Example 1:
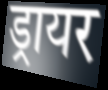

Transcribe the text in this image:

ड्रायर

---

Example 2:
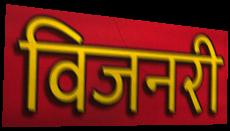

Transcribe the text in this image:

विजनरी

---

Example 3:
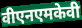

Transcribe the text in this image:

वीएनएमकेवी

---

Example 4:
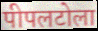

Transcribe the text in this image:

पीपलटोला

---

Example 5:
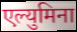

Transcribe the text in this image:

एल्युमिना